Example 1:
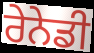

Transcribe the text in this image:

ਰੇਨੇਡੀ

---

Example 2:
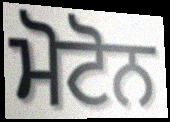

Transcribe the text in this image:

ਮੋਟੋਨ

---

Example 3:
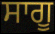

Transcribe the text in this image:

ਸਾਗੂ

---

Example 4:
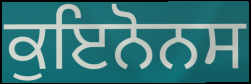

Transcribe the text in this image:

ਕੁਇਨੋਨਸ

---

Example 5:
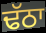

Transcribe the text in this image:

ਢੱਠਾ